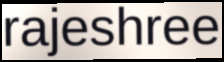
rajeshree